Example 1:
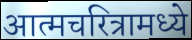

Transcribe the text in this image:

आत्मचरित्रामध्ये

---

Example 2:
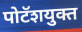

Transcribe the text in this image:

पोटॅशयुक्त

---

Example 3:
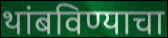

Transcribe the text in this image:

थांबविण्याचा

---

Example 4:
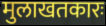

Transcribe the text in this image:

मुलाखतकारः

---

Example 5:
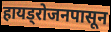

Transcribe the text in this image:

हायड्रोजनपासून